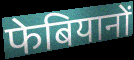
फेबियानों